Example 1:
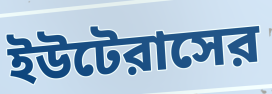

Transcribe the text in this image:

ইউটেরাসের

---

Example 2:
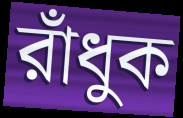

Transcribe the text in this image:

রাঁধুক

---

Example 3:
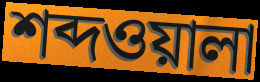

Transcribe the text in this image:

শব্দওয়ালা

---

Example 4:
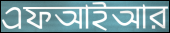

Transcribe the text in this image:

এফআইআর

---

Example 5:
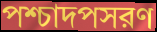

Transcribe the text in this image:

পশ্চাদপসরণ